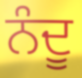
ਨੰਦੂ